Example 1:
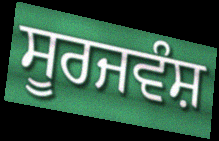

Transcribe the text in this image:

ਸੂਰਜਵੰਸ਼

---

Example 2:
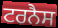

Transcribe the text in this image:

ਟਰਨੈਸ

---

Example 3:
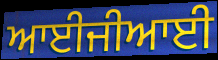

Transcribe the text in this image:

ਆਈਜੀਆਈ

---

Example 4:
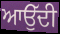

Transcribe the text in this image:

ਆਉੱਦੀ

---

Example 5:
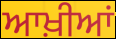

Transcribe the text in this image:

ਆਖ਼ੀਆਂ